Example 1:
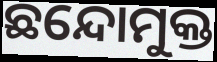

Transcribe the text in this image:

ଛନ୍ଦୋମୁକ୍ତ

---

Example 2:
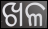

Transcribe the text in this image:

ଖଳ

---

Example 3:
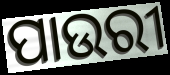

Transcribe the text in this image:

ପାଉରୀ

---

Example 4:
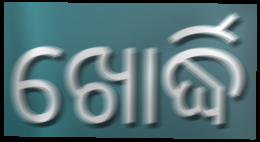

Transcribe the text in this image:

ଖୋର୍ଦ୍ଧି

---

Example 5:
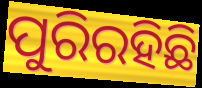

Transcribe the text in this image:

ପୁରିରହିଛି